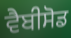
ਵੈਬੀਸੋਡ